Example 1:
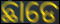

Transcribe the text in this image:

ଛାଡେ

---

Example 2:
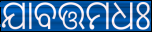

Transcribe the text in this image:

ଯାବତ୍ତମଧଃ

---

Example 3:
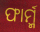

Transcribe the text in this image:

ଫାର୍ମ୍ମ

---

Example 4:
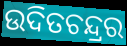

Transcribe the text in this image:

ଉଦିତଚନ୍ଦ୍ରର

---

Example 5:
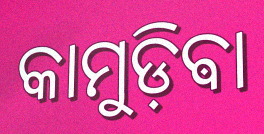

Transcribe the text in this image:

କାମୁଡ଼ିଵା